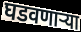
घडवणार्‍या